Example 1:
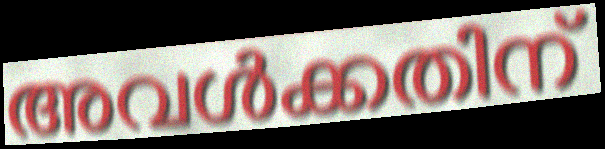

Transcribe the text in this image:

അവൾക്കതിന്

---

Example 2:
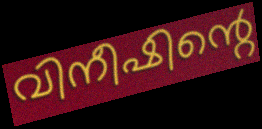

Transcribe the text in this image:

വിനീഷിന്റെ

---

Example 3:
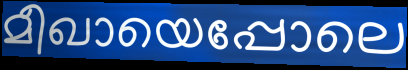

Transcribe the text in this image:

മീഖായെപ്പോലെ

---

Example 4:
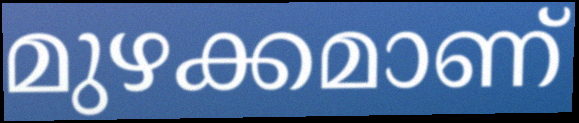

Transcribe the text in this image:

മുഴക്കമാണ്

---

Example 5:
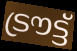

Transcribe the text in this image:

ട്രൗട്ട്